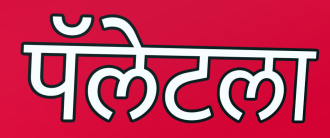
पॅलेटला